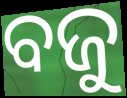
ବଜୁ